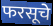
फरसूचे